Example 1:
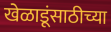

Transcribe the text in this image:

खेळाडूंसाठीच्या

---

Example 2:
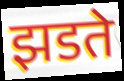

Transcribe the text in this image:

झडते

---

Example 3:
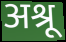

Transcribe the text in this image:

अश्रू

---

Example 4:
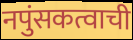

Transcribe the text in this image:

नपुंसकत्वाची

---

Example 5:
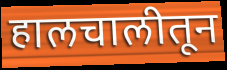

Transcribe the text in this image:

हालचालीतून